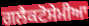
ਗਲੈਕਟੋਸੇਮੀਆ